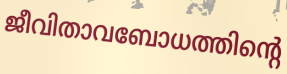
ജീവിതാവബോധത്തിന്റെ